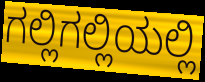
ಗಲ್ಲಿಗಲ್ಲಿಯಲ್ಲಿ